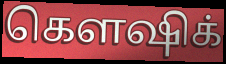
கௌஷிக்